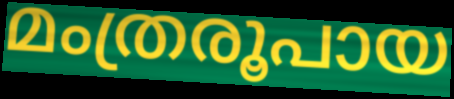
മംത്രരൂപായ